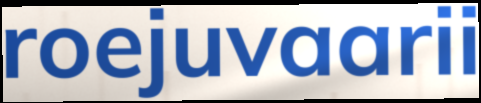
roejuvaarii